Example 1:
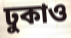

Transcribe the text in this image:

ঢুকাও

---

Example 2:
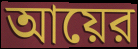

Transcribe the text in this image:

আয়ের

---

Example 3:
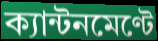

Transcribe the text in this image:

ক্যান্টনমেণ্টে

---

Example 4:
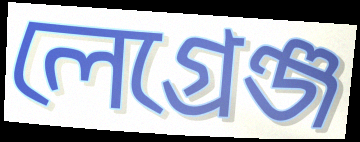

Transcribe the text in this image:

লেগ্রেঞ্জ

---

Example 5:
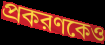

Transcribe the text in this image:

প্রকরণকেও